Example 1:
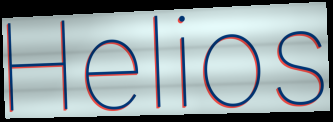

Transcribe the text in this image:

Helios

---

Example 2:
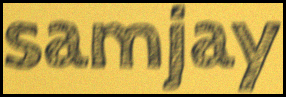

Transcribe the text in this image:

samjay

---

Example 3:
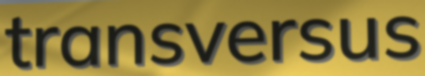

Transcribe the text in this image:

transversus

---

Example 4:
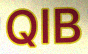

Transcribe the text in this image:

QIB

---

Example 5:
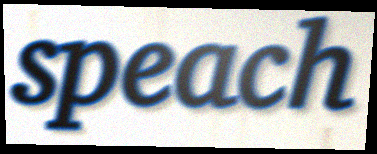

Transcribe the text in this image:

speach